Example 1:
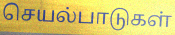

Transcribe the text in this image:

செயல்பாடுகள்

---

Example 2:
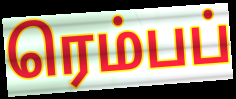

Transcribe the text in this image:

ரெம்பப்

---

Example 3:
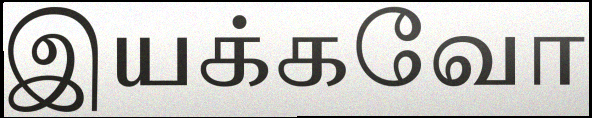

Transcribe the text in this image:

இயக்கவோ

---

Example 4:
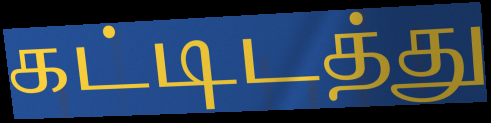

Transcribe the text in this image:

கட்டிடத்து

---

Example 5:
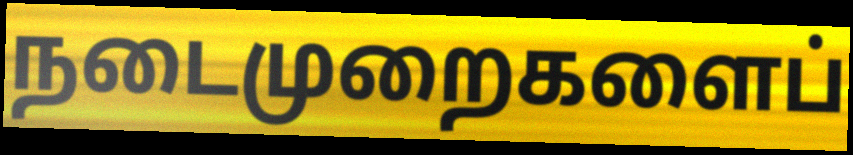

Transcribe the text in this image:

நடைமுறைகளைப்